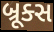
બ્રૂક્સ